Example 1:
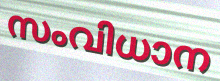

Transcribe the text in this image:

സംവിധാന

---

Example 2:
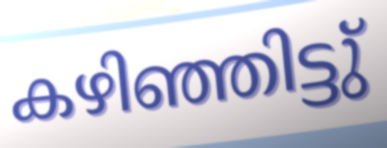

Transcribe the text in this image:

കഴിഞ്ഞിട്ടു്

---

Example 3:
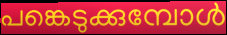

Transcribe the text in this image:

പങ്കെടുക്കുമ്പോൾ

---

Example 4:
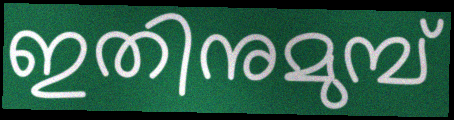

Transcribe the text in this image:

ഇതിനുമുമ്പ്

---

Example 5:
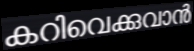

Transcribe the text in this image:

കറിവെക്കുവാൻ